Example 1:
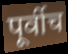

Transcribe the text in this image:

पूर्वीच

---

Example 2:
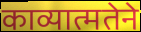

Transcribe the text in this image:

काव्यात्मतेने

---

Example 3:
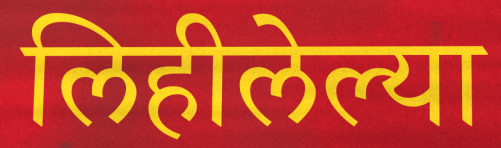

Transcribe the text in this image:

लिहीलेल्या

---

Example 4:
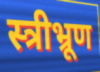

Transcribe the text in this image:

स्त्रीभ्रूण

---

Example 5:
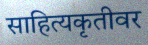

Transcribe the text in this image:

साहित्यकृतीवर